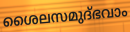
ശൈലസമുദ്ഭവാം